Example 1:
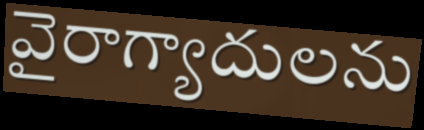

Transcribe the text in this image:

వైరాగ్యాదులను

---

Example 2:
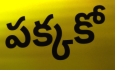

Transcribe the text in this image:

పక్కకో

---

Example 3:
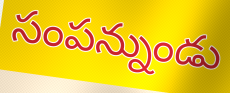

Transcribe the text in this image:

సంపన్నుండు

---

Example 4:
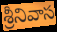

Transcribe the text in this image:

శ్రీనివాస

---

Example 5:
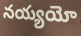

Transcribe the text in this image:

నయ్యయో